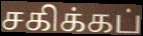
சகிக்கப்